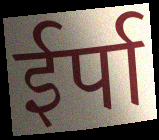
ईर्पा